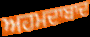
ਅਹਮਦਾਬਾਦ